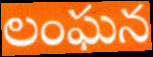
లంఘన